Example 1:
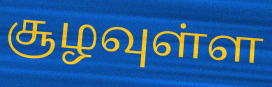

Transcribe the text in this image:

சூழவுள்ள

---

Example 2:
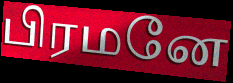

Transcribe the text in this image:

பிரமனே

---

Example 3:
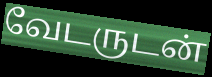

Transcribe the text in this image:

வேடருடன்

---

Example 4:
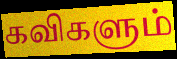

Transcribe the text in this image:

கவிகளும்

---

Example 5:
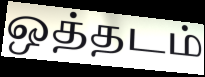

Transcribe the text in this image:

ஒத்தடம்